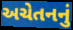
અચેતનનું